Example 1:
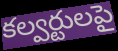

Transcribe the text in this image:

కల్వర్టులపై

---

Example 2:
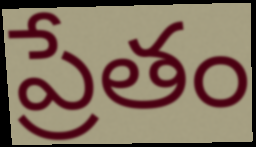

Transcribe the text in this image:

ప్రేతం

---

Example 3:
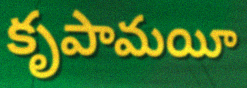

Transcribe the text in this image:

కృపామయీ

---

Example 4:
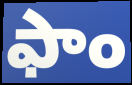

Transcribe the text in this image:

ఫాం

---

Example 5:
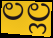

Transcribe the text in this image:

లల్ల